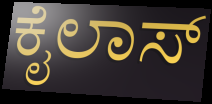
ಕೈಲಾಸ್